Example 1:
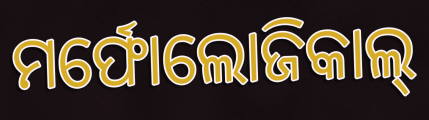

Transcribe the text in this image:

ମର୍ଫୋଲୋଜିକାଲ୍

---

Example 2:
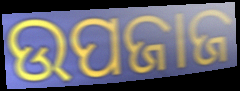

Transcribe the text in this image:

ଉପଜାଜ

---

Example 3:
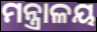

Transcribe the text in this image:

ମନ୍ତ୍ରାଳୟ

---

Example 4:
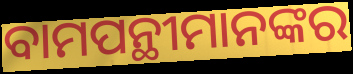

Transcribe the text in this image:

ବାମପନ୍ଥୀମାନଙ୍କର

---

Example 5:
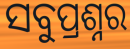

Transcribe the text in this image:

ସବୁପ୍ରଶ୍ନର